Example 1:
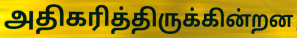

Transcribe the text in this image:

அதிகரித்திருக்கின்றன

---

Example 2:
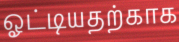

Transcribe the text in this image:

ஓட்டியதற்காக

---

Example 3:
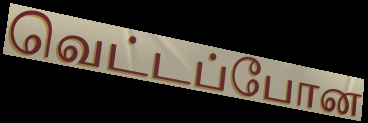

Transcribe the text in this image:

வெட்டப்போன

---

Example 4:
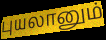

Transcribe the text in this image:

புயலானும்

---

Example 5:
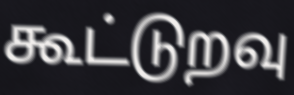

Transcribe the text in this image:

கூட்டுறவு